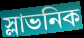
স্লাভনিক